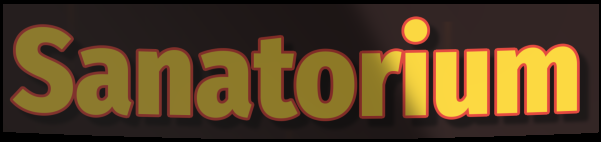
Sanatorium